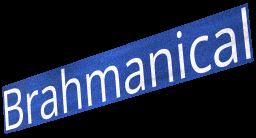
Brahmanical